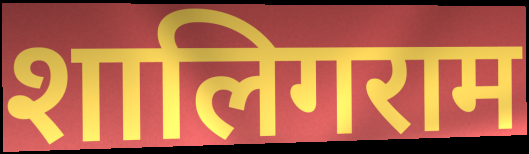
शालिगराम